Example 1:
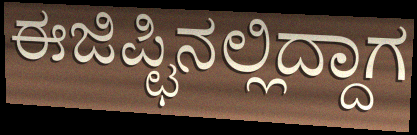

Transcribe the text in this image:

ಈಜಿಪ್ಟಿನಲ್ಲಿದ್ದಾಗ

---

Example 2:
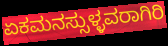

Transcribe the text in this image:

ಏಕಮನಸ್ಸುಳ್ಳವರಾಗಿರಿ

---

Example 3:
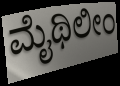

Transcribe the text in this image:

ಮೈಥಿಲೀಂ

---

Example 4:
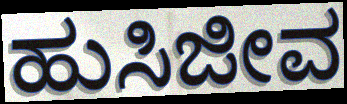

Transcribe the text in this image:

ಹುಸಿಜೀವ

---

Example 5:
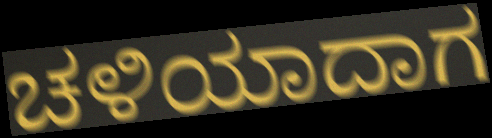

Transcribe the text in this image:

ಚಳಿಯಾದಾಗ